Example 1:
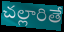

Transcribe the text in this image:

చల్లారితే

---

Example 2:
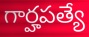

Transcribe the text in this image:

గార్హపత్యే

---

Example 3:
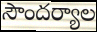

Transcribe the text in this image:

సౌందర్యాల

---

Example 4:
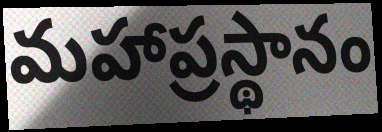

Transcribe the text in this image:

మహాప్రస్థానం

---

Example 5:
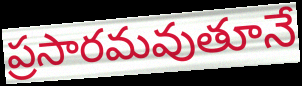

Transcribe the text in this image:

ప్రసారమవుతూనే